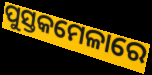
ପୁସ୍ତକମେଳାରେ